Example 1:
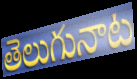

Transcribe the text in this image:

తెలుగునాట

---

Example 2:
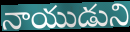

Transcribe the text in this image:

నాయుడుని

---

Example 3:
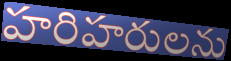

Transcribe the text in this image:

హరిహరులను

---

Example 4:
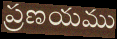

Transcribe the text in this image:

ప్రణయము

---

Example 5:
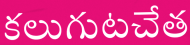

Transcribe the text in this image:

కలుగుటచేత